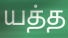
யத்த